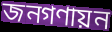
জনগণায়ন